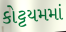
કોટ્ટયમમાં